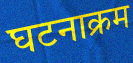
घटनाक्रम